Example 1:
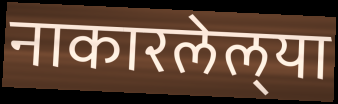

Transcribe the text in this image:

नाकारलेल्या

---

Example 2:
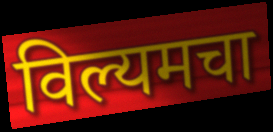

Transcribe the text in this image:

विल्यमचा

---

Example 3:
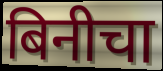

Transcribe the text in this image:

बिनीचा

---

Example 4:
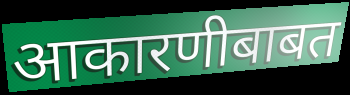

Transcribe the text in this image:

आकारणीबाबत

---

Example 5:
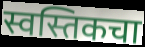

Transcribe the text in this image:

स्वस्तिकचा